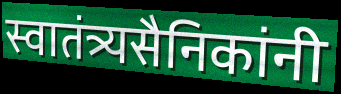
स्वातंत्र्यसैनिकांनी